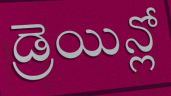
డ్రెయిన్లో